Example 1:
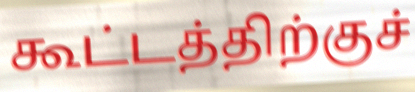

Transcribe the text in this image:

கூட்டத்திற்குச்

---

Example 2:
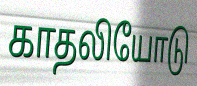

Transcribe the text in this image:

காதலியோடு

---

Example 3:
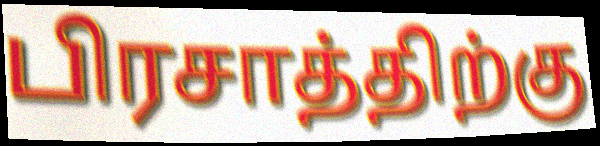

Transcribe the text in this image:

பிரசாத்திற்கு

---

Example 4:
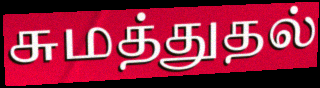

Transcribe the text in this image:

சுமத்துதல்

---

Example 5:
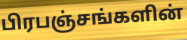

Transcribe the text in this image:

பிரபஞ்சங்களின்